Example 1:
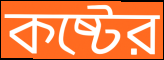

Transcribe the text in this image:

কষ্টের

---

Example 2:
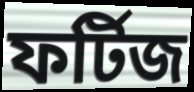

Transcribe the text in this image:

ফর্টিজ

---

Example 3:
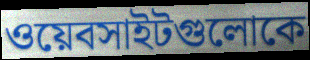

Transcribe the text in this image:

ওয়েবসাইটগুলোকে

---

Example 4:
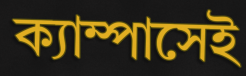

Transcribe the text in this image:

ক্যাম্পাসেই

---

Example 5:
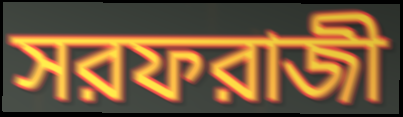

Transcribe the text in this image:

সরফরাজী